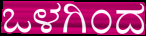
ಒಳಗಿಂದ